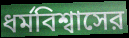
ধর্মবিশ্বাসের